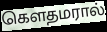
கௌதமரால்